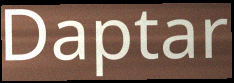
Daptar